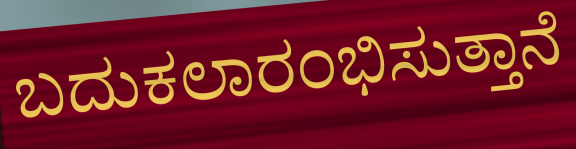
ಬದುಕಲಾರಂಭಿಸುತ್ತಾನೆ